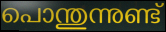
പൊന്തുന്നുണ്ട്